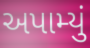
અપામ્યું